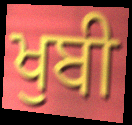
ਖੁਬੀ